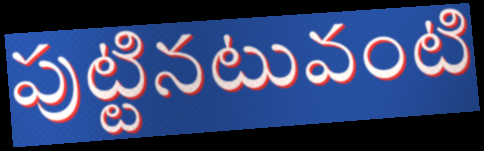
పుట్టినటువంటి